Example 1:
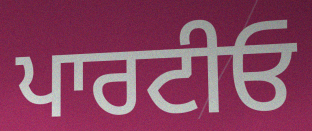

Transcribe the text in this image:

ਪਾਰਟੀਓ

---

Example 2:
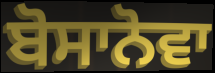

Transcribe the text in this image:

ਬੋਸਾਨੋਵਾ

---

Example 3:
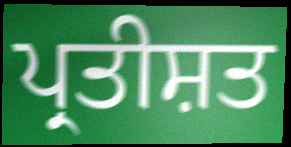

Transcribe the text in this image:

ਪ੍ਰਤੀਸ਼ਤ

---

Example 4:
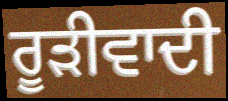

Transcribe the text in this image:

ਰੂੜੀਵਾਦੀ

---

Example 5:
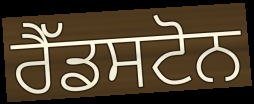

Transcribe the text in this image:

ਰੈੱਡਸਟੋਨ